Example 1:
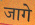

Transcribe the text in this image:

जागे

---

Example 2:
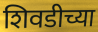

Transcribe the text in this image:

शिवडीच्या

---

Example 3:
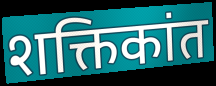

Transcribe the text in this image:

शक्तिकांत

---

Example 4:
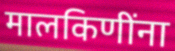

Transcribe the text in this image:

मालकिणींना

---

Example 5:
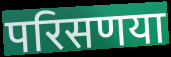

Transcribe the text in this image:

परिसणया